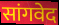
सांगवेद